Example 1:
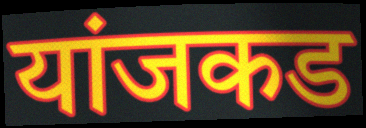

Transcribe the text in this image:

यांजकड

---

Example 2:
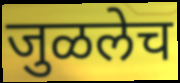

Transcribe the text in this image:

जुळलेच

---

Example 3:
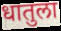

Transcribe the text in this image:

धातुला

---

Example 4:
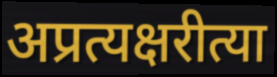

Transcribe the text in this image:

अप्रत्यक्षरीत्या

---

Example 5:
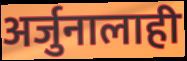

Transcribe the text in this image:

अर्जुनालाही